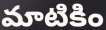
మాటికిం